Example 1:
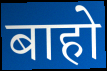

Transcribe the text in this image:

बाहो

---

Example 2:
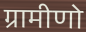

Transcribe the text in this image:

ग्रामीणो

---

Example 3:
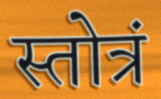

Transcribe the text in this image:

स्तोत्रं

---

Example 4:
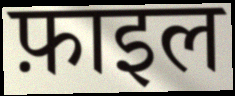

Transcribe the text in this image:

फ़ाइल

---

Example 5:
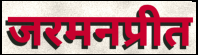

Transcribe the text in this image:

जरमनप्रीत